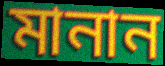
মানান